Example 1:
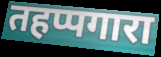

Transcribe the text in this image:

तहप्पगारा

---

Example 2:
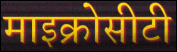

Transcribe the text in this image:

माइक्रोसीटी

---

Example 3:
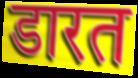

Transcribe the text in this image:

डारत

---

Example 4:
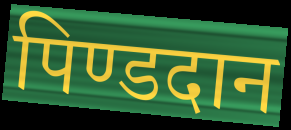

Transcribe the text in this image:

पिण्डदान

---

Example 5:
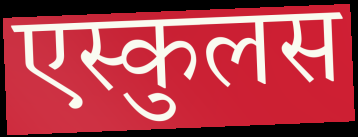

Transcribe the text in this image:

एस्कुलस